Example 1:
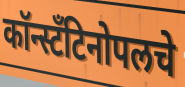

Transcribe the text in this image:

कॉन्स्टँटिनोपलचे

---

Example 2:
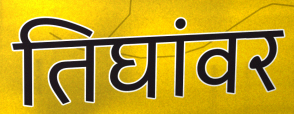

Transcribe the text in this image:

तिघांवर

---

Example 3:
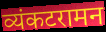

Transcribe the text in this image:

व्यंकटरामन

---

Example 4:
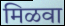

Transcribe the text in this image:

मिळवा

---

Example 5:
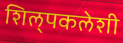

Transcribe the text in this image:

शिल्पकलेशी